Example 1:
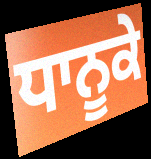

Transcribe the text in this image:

ਧਾਨੂਕੇ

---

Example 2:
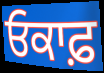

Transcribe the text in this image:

ਓਕਾਫ਼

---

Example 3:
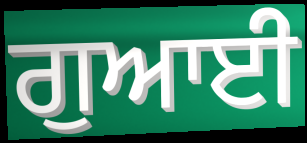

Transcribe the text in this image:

ਗੁਆਈ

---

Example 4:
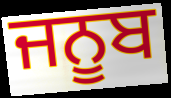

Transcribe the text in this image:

ਜਨੂਬ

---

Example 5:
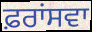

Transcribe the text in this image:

ਫ਼ਰਾਂਸਵਾ